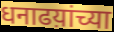
धनाढय़ांच्या